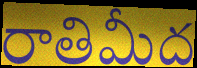
రాతిమీద